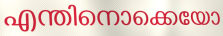
എന്തിനൊക്കെയോ